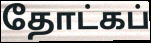
தோட்கப்